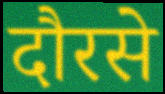
दौरसे